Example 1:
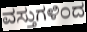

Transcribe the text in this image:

ವಸ್ತುಗಳಿಂದ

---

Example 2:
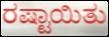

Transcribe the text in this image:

ರಷ್ಟಾಯಿತು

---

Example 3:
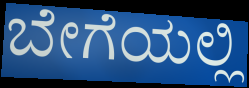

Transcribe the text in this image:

ಬೇಗೆಯಲ್ಲಿ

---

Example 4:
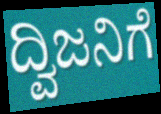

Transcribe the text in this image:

ದ್ವಿಜನಿಗೆ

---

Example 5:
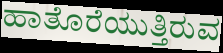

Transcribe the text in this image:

ಹಾತೊರೆಯುತ್ತಿರುವ